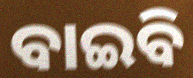
ବାଇବି